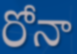
రోనా